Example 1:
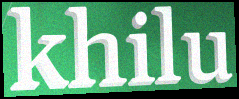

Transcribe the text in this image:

khilu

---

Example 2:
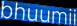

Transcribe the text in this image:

bhuumii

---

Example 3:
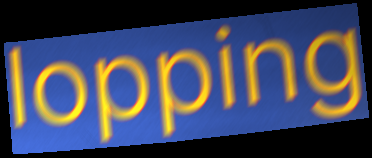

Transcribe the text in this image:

lopping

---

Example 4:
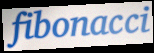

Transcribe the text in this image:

fibonacci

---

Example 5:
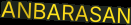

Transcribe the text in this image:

ANBARASAN